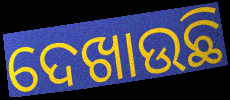
ଦେଖାଉଛି